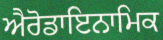
ਐਰੋਡਾਇਨਾਮਿਕ